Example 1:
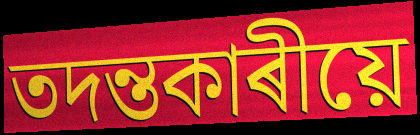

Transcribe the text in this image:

তদন্তকাৰীয়ে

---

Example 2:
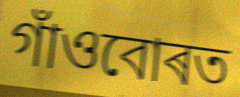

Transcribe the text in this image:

গাঁওবোৰত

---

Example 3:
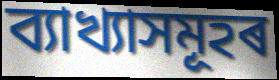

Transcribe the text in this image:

ব্যাখ্যাসমূহৰ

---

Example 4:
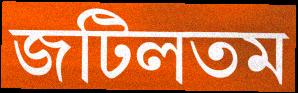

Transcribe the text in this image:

জটিলতম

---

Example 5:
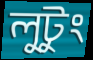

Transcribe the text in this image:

লুটুং